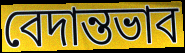
বেদান্তভাব